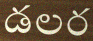
డలర